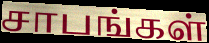
சாபங்கள்